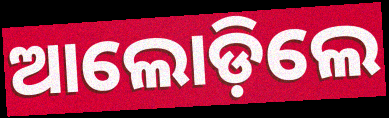
ଆଲୋଡ଼ିଲେ